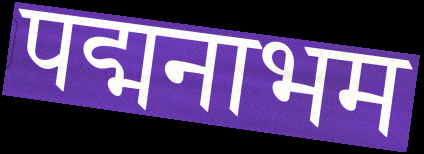
पद्मनाभम